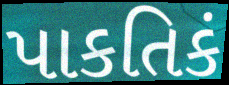
પાકતિકં